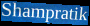
Shampratik